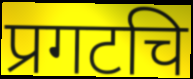
प्रगटचि